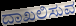
ದಾಖಲಿಸುವ